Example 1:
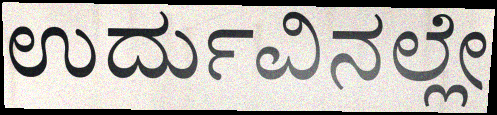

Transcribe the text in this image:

ಉರ್ದುವಿನಲ್ಲೇ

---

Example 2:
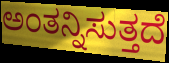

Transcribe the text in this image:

ಅಂತನ್ನಿಸುತ್ತದೆ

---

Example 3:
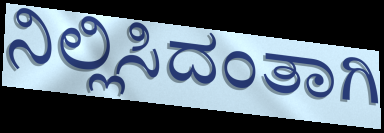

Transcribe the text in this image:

ನಿಲ್ಲಿಸಿದಂತಾಗಿ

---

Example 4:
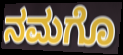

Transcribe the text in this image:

ನಮಗೊ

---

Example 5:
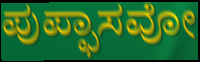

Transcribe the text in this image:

ಪುಪ್ಫಾಸವೋ